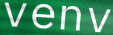
venv